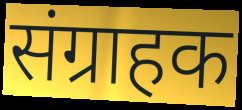
संग्राहक